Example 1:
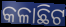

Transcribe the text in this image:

କଳାଛିଟ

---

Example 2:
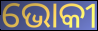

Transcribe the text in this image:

ଭୋକୀ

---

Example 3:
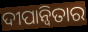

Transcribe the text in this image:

ଦୀପାନ୍ୱିତାର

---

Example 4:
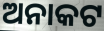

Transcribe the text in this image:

ଅନାକଟ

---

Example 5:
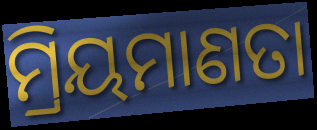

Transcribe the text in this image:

ମ୍ରିୟମାଣତା